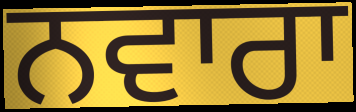
ਨਵਾਰਾ